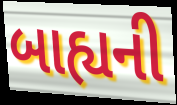
બાહ્યની